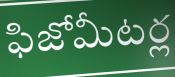
ఫిజోమీటర్ల